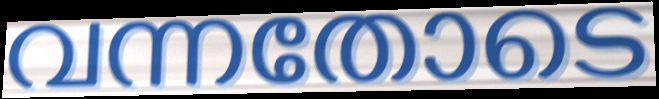
വന്നതോടെ